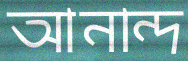
আনান্দ